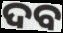
ଦବ